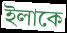
ইলাকে